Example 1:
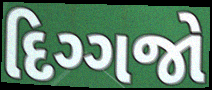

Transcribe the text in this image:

દિગ્ગજો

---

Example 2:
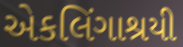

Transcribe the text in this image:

એકલિંગાશ્રયી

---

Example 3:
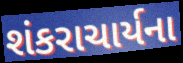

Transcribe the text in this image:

શંકરાચાર્યના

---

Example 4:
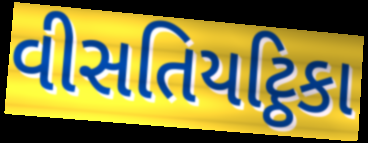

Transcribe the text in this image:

વીસતિયટ્ઠિકા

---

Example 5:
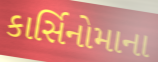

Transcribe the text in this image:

કાર્સિનોમાના